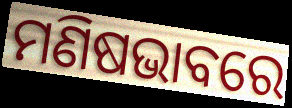
ମଣିଷଭାବରେ